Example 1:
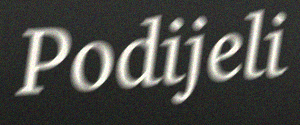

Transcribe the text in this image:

Podijeli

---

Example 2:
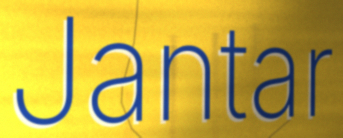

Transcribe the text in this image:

Jantar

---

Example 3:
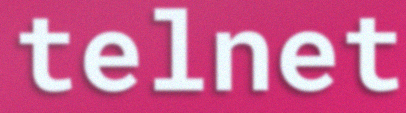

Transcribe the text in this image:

telnet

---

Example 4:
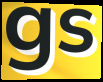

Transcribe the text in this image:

gs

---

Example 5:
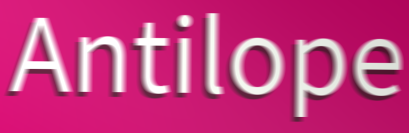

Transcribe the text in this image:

Antilope